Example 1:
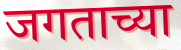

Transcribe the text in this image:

जगताच्या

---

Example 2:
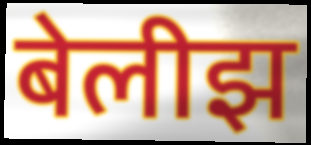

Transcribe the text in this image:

बेलीझ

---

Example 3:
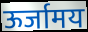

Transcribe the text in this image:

ऊर्जामय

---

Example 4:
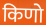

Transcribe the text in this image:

किणो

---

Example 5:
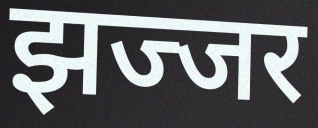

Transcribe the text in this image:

झज्जर